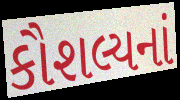
કૌશલ્યનાં